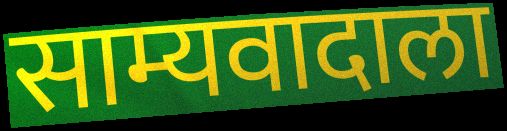
साम्यवादाला